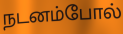
நடனம்போல்